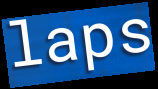
laps